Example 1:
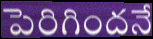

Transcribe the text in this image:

పెరిగిందనే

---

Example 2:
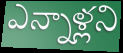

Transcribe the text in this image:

ఎన్నాళ్లని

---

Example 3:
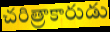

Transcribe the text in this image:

చరిత్రాకారుడు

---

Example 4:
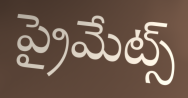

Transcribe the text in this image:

ప్రైమేట్స్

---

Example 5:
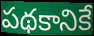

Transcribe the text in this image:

పథకానికే